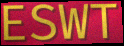
ESWT